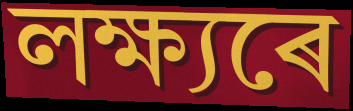
লক্ষ্যৰে